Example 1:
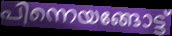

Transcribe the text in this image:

പിന്നെയങ്ങോട്ട്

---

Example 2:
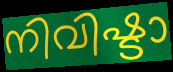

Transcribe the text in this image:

നിവിഷ്ടാ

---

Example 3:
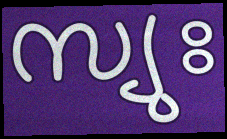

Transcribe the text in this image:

സ്യുഃ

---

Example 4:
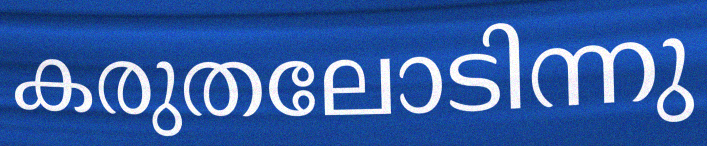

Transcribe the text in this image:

കരുതലോടിന്നു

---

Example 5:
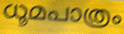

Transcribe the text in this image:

ധൂമപാത്രം